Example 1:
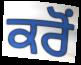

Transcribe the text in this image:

ਕਰੋਂ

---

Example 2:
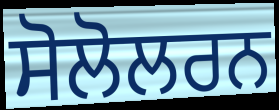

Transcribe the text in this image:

ਸੋਲੋਲਰਨ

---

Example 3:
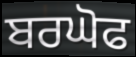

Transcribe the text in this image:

ਬਰਘੋਫ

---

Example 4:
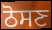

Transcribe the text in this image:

ਠੋਸਣ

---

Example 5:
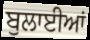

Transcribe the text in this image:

ਬੁਲਾਈਆਂ